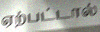
ஏற்பட்டால்